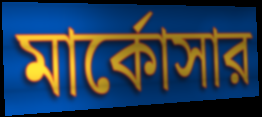
মার্কোসার